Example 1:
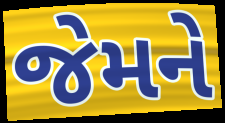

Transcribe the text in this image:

જેમને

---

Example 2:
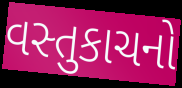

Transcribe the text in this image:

વસ્તુકાચનો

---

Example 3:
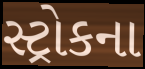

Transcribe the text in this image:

સ્ટ્રોકના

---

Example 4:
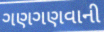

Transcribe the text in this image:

ગણગણવાની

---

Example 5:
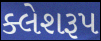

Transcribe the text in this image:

ક્લેશરૂપ